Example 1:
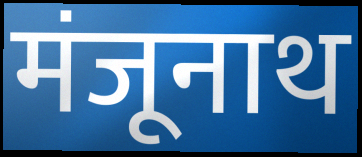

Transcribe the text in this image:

मंजूनाथ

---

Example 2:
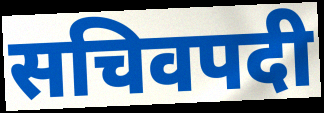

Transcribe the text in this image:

सचिवपदी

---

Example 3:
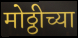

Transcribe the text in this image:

मोठ्ठीच्या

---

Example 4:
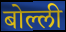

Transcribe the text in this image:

बोल्ली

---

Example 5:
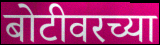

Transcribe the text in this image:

बोटीवरच्या